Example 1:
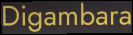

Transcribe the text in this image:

Digambara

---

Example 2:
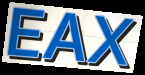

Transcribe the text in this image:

EAX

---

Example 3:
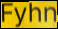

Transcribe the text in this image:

Fyhn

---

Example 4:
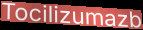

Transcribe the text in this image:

Tocilizumazb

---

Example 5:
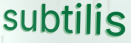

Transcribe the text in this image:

subtilis